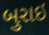
બુરાઇ